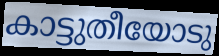
കാട്ടുതീയോടു